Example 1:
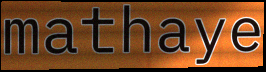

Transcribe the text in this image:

mathaye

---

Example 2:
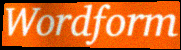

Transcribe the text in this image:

Wordform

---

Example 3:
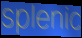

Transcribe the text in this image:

splenic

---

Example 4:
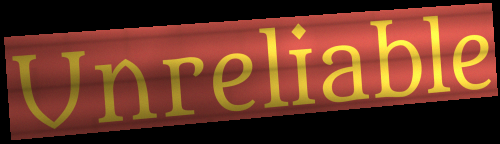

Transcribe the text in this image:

Unreliable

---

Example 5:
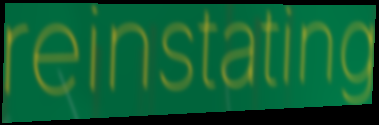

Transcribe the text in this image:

reinstating